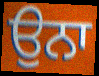
ਉਨਾ